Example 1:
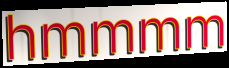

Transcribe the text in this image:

hmmmm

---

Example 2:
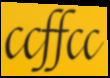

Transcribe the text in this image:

ccffcc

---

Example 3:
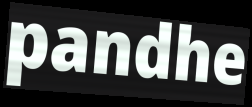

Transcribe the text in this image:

pandhe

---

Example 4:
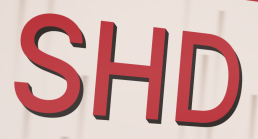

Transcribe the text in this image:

SHD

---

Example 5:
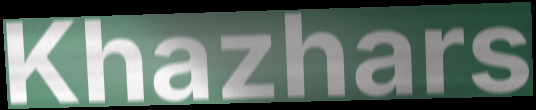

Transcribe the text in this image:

Khazhars